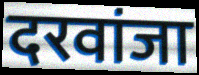
दरवांजा